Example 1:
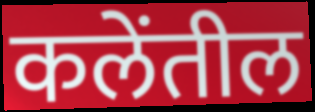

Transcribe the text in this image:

कलेंतील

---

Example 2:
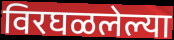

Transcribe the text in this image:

विरघळलेल्या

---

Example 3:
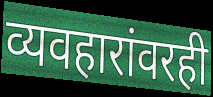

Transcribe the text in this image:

व्यवहारांवरही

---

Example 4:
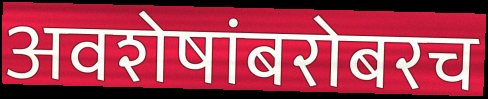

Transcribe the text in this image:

अवशेषांबरोबरच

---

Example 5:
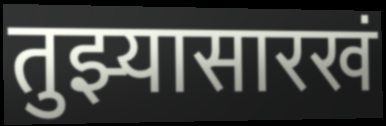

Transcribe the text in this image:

तुझ्यासारखं